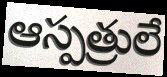
ఆస్పత్రులే